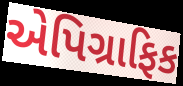
એપિગ્રાફિક